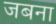
जबना